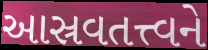
આસ્રવતત્ત્વને